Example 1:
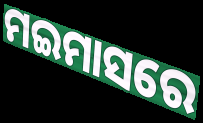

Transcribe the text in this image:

ମଇମାସରେ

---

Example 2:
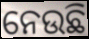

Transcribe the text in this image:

ନେଉଛି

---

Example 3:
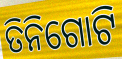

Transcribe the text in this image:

ତିନିଗୋଟି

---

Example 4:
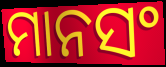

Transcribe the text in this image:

ମାନସଂ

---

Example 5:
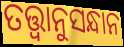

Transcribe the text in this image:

ତତ୍ତ୍ବାନୁସନ୍ଧାନ